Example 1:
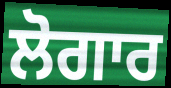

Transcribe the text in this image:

ਲੋਗਾਰ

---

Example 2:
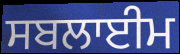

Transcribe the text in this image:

ਸਬਲਾਈਮ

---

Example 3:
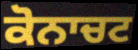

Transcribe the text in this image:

ਕੋਨਾਚਟ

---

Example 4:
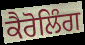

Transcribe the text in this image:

ਕੈਰੋਲਿੰਗ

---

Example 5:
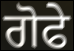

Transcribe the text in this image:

ਗੋਫੇ